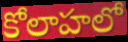
కోలాహలో